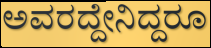
ಅವರದ್ದೇನಿದ್ದರೂ